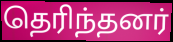
தெரிந்தனர்